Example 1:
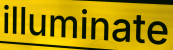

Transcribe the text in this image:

illuminate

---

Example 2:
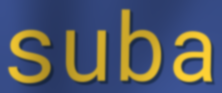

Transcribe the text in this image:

suba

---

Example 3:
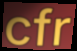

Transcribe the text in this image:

cfr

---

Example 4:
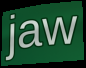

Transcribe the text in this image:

jaw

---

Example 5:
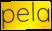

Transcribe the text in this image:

pela